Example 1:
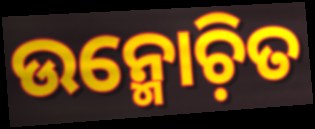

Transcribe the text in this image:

ଉନ୍ମୋଚ଼ିତ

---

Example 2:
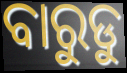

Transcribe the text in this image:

ବାରୁଡୁ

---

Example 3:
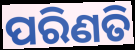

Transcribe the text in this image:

ପରିଣତି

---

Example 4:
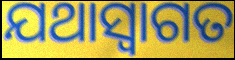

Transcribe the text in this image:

ଯଥାସ୍ଵାଗତ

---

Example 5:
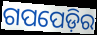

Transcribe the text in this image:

ଗପପେଡ଼ିର